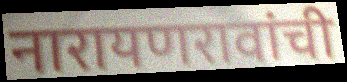
नारायणरावांची